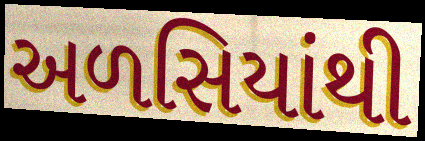
અળસિયાંથી